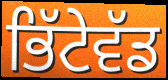
ਭਿੱਟੇਵੱਡ